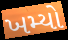
ખમ્યો